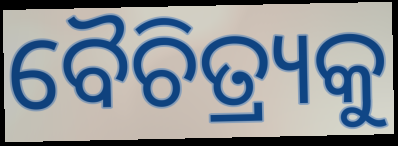
ବୈଚିତ୍ର୍ୟକୁ